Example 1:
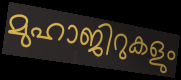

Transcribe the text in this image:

മുഹാജിറുകളും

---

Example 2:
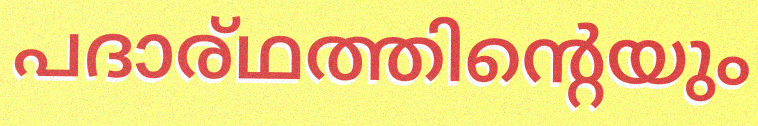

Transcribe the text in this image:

പദാര്ഥത്തിന്റെയും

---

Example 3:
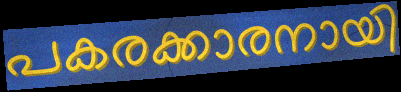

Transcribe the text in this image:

പകരക്കാരനായി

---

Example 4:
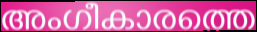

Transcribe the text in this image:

അംഗീകാരത്തെ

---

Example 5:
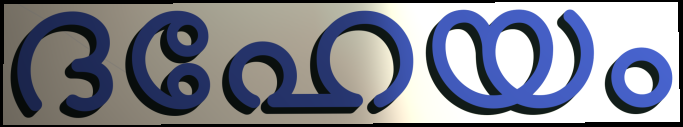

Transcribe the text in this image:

ദഹേയം